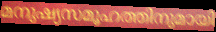
മനുഷ്യസമൂഹത്തിനുമായി